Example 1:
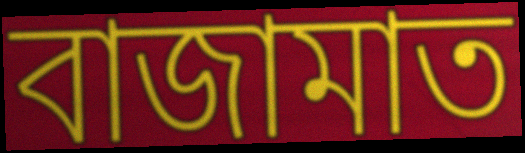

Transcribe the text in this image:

বাজামাত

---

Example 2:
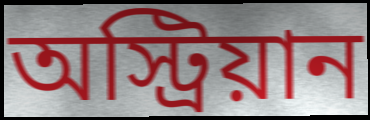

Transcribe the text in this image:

অস্ট্রিয়ান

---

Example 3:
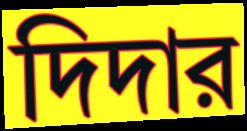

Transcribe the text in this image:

দিদার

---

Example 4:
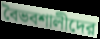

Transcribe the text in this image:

বৈভবশালীদের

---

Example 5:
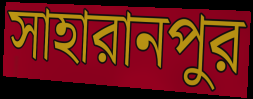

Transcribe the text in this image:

সাহারানপুর